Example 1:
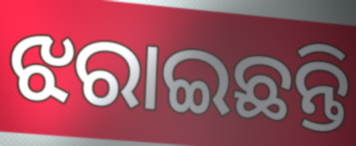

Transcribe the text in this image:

ଝରାଇଛନ୍ତି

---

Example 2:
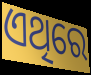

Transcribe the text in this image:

ଏଥିରେ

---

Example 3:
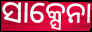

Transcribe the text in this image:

ସାକ୍ସେନା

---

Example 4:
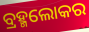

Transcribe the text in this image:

ବ୍ରହ୍ମଲୋକର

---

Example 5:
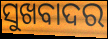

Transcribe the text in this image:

ସୁଖବାଦର